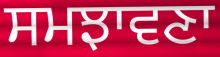
ਸਮਝਾਵਣਾ